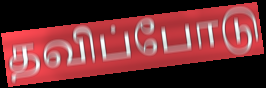
தவிப்போடு